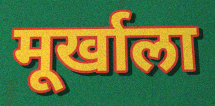
मूर्खाला